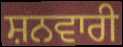
ਸ਼ਨਵਾਰੀ